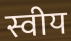
स्वीय